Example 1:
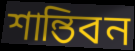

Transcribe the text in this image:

শান্তিবন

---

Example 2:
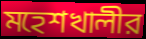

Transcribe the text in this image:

মহেশখালীর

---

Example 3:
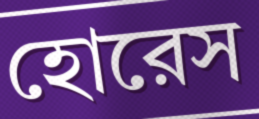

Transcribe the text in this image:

হোরেস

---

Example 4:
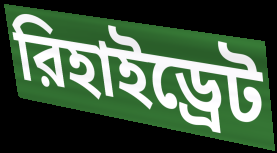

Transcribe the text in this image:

রিহাইড্রেট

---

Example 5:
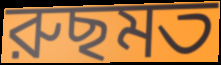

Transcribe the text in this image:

রুছমত